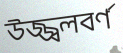
উজ্জ্বলবর্ণ